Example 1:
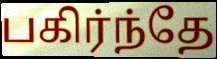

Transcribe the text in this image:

பகிர்ந்தே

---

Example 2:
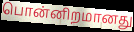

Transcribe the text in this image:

பொன்னிறமானது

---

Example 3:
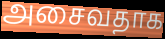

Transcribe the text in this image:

அசைவதாக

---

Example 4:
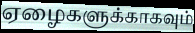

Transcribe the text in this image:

ஏழைகளுக்காகவும்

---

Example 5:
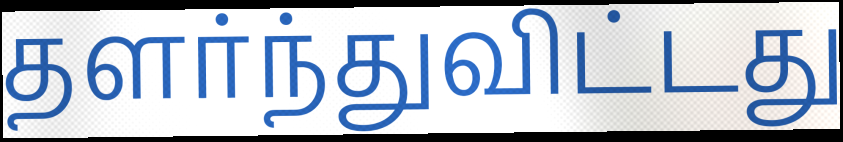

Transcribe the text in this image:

தளர்ந்துவிட்டது